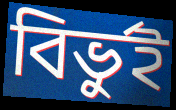
বির্ভুই